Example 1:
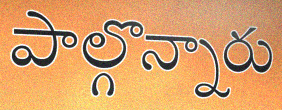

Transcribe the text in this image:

పాల్గొన్నారు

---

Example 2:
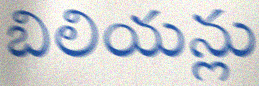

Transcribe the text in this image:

బిలియన్లు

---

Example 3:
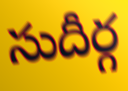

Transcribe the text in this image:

సుదీర్గ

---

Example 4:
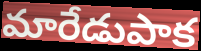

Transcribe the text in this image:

మారేడుపాక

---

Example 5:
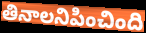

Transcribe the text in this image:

తినాలనిపించింది